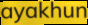
ayakhun